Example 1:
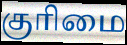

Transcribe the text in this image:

குரிமை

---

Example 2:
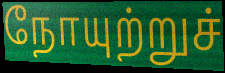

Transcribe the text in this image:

நோயுற்றுச்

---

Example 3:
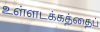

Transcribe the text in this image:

உள்ளடக்கத்தைப்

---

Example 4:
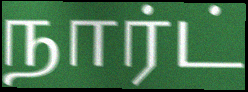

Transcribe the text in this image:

நார்ட்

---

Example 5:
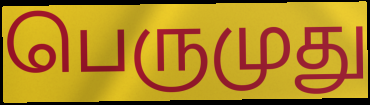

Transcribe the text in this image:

பெருமுது